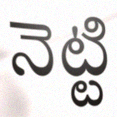
నెట్టి